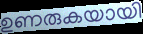
ഉണരുകയായി